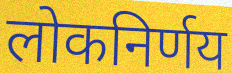
लोकनिर्णय